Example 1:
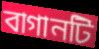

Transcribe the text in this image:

বাগানটি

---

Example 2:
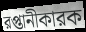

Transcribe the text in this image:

রপ্তানীকারক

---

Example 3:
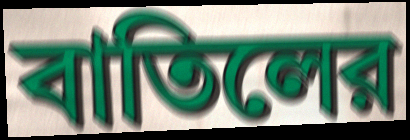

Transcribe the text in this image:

বাতিলের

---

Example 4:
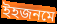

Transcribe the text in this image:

ইহজনমে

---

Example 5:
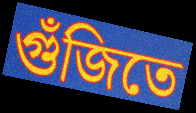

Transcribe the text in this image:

গুঁজিতে